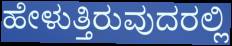
ಹೇಳುತ್ತಿರುವುದರಲ್ಲಿ